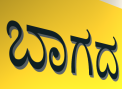
ಬಾಗದ